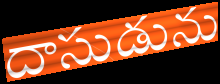
దాసుడును